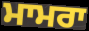
ਮਾਮਰਾ